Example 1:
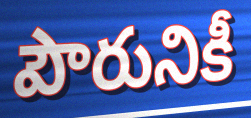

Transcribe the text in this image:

పౌరునికీ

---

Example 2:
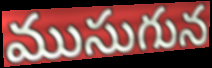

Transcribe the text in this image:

ముసుగున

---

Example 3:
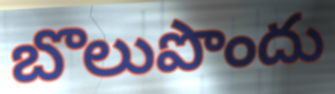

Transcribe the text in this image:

బొలుపొందు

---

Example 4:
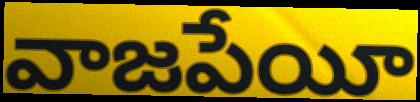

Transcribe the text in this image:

వాజపేయీ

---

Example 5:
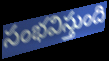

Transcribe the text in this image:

సంభవిస్తుంది